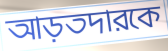
আড়তদারকে